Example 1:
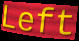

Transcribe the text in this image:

Left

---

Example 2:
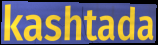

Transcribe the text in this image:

kashtada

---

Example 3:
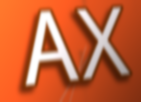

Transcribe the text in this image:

AX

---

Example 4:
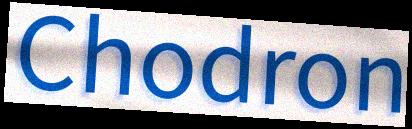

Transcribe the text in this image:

Chodron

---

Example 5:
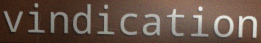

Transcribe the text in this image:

vindication